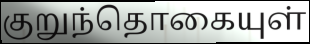
குறுந்தொகையுள்